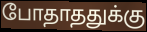
போதாததுக்கு